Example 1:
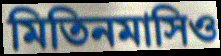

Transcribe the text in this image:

মিতিনমাসিও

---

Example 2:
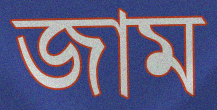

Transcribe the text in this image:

জাম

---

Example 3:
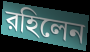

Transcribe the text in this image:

রহিলেন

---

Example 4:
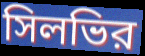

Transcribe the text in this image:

সিলভির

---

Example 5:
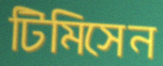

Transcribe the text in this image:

টিমিসেন